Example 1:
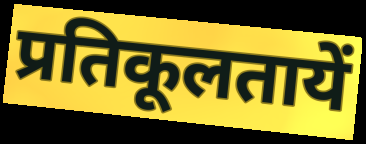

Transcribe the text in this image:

प्रतिकूलतायें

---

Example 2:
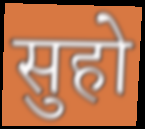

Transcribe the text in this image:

सुहो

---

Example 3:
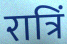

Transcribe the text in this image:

रात्रिं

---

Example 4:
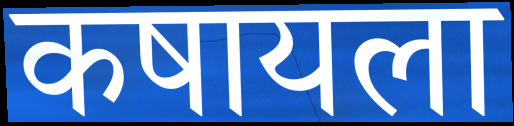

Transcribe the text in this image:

कषायला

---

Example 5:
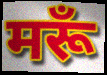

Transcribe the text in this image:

मरूँ